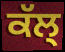
ਕੱਲ੍